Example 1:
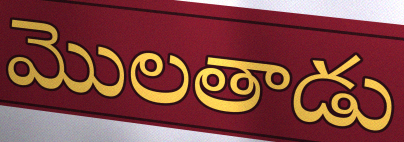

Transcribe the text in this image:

మొలతాడు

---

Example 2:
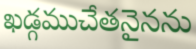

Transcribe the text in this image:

ఖడ్గముచేతనైనను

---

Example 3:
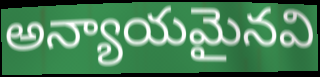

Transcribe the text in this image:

అన్యాయమైనవి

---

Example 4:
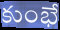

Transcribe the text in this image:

కుంభే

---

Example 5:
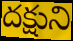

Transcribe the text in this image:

దక్షుని